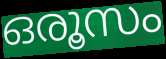
ഒരൂസം